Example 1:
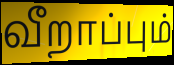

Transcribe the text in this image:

வீறாப்பும்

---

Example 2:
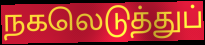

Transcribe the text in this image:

நகலெடுத்துப்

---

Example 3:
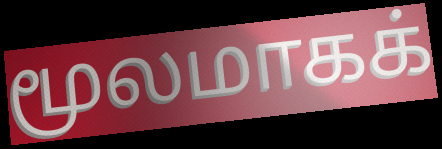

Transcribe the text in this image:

மூலமாகக்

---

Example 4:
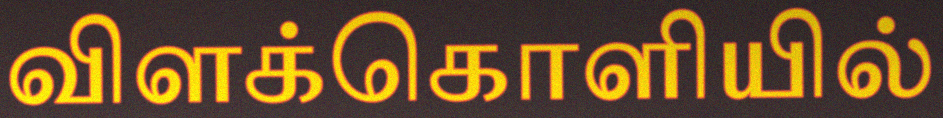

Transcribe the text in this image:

விளக்கொளியில்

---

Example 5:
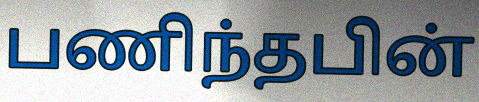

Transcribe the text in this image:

பணிந்தபின்